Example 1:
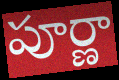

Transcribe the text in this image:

పూర్ణా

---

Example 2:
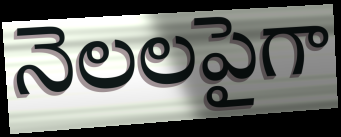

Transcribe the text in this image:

నెలలపైగా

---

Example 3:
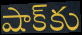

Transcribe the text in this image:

షాక్‌కు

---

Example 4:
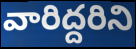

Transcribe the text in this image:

వారిద్దరిని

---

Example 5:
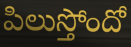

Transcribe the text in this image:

పిలుస్తోందో